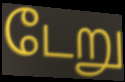
டேறு